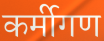
कर्मीगण